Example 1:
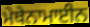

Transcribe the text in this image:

ਮੇਥੇਨਾਮਾਈਨ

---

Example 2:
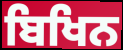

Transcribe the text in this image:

ਬਿਖਿਨ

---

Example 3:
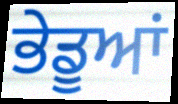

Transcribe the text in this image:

ਭੇਡੂਆਂ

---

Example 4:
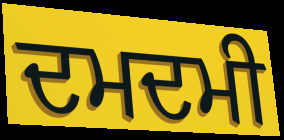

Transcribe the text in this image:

ਦਮਦਮੀ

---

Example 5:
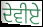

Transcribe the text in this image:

ਦੇਵੀਏ